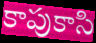
కాపుకాసి